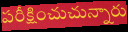
పరీక్షించుచున్నారు